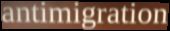
antimigration